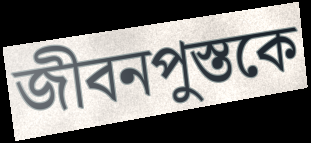
জীবনপুস্তকে